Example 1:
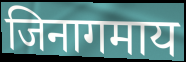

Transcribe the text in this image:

जिनागमाय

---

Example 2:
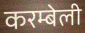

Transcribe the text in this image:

करम्बेली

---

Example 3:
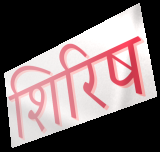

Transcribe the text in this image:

शिरिष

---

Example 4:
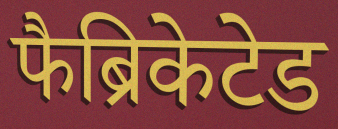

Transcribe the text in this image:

फैब्रिकेटेड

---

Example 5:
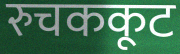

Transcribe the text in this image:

रुचककूट